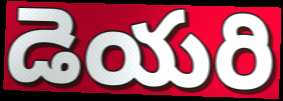
డెయరి